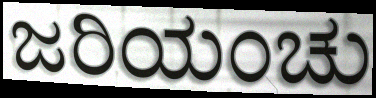
ಜರಿಯಂಚು